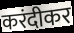
करंदीकर